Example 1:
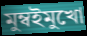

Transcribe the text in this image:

মুম্বইমুখো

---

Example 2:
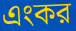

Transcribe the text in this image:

এংকর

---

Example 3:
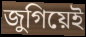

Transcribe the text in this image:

জুগিয়েই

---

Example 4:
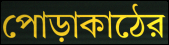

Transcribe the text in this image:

পোড়াকাঠের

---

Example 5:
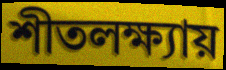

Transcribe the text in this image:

শীতলক্ষ্যায়